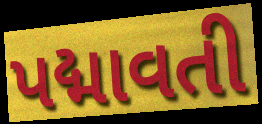
પદ્માવતી